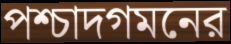
পশ্চাদগমনের